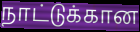
நாட்டுக்கான